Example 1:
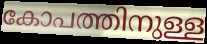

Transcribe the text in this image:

കോപത്തിനുള്ള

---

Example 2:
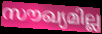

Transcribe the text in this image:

സൗഖ്യമില്ല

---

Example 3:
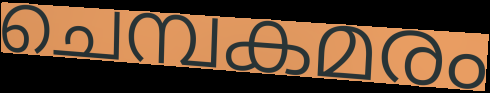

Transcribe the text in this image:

ചെമ്പകമരം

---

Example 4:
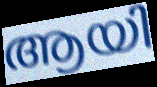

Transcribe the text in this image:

ആയി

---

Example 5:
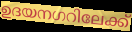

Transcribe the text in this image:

ഉദയനഗറിലേക്ക്